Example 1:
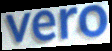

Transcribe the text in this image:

vero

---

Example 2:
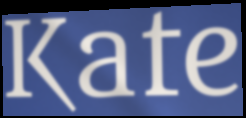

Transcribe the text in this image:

Kate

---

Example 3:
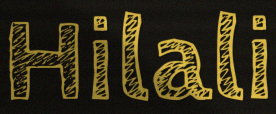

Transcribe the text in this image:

Hilali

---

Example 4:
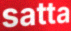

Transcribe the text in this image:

satta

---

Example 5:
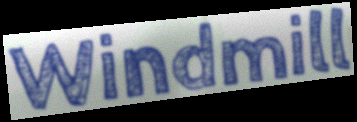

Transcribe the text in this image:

Windmill